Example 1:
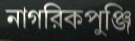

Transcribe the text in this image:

নাগরিকপুঞ্জি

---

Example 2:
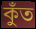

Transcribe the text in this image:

কুঁত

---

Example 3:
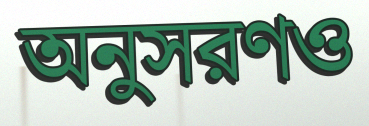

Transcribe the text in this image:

অনুসরণও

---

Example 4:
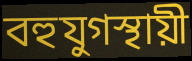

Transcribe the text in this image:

বহুযুগস্থায়ী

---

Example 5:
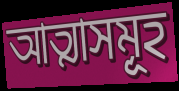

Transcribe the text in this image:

আত্মাসমূহ